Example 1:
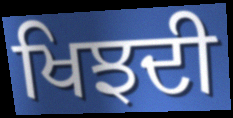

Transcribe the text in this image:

ਖਿਝਦੀ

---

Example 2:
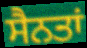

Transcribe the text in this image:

ਸੈਨਤਾਂ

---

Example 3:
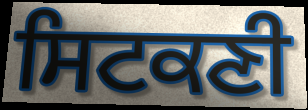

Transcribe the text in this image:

ਸਿਟਕਣੀ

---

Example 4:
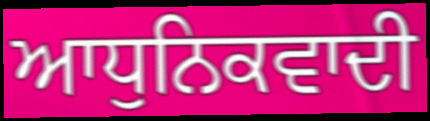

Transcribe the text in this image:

ਆਧੁਨਿਕਵਾਦੀ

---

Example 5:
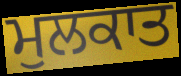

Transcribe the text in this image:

ਮੁਲਕਾਤ